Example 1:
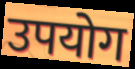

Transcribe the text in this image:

उपयोग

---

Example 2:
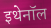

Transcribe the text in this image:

इथेनॉल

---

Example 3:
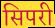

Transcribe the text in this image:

सिपरी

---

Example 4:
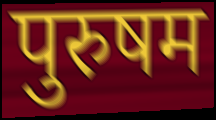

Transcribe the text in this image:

पुरुषम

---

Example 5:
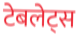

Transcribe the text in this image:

टेबलेट्स